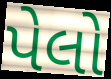
પેલો